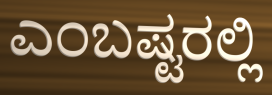
ಎಂಬಷ್ಟರಲ್ಲಿ